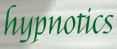
hypnotics